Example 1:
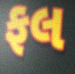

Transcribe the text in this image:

ફલ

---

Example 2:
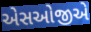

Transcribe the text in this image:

એસઓજીએ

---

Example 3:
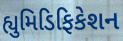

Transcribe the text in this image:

હ્યુમિડિફિકેશન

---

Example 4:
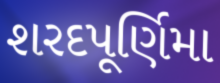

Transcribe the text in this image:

શરદપૂર્ણિમા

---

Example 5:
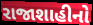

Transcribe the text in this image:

રાજાશાહીનો